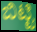
ಬಿಟ್ಟಿ